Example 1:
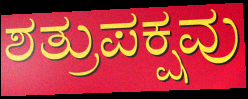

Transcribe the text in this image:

ಶತ್ರುಪಕ್ಷವು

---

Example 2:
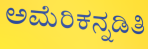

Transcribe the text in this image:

ಅಮೆರಿಕನ್ನಡಿತಿ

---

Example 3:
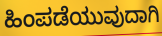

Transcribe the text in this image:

ಹಿಂಪಡೆಯುವುದಾಗಿ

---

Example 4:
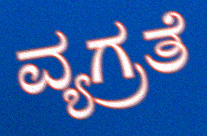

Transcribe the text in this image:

ವ್ಯಗ್ರತೆ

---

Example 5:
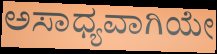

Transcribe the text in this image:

ಅಸಾಧ್ಯವಾಗಿಯೇ